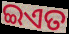
ଇଏତ